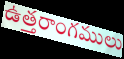
ఉత్తరాంగములు